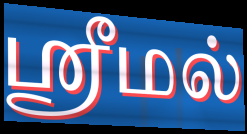
ஶ்ரீமல்